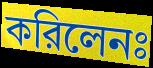
করিলেনঃ